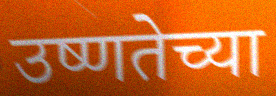
उष्णतेच्या